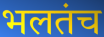
भलतंच